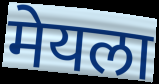
मेयला